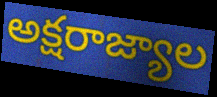
అక్షరాజ్యాల